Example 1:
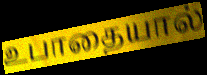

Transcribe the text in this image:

உபாதையால்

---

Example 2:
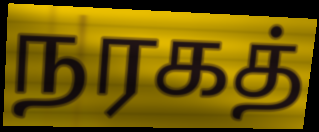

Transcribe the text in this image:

நரகத்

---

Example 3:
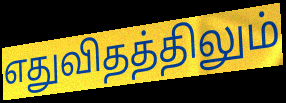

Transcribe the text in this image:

எதுவிதத்திலும்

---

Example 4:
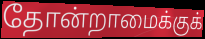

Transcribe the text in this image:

தோன்றாமைக்குக்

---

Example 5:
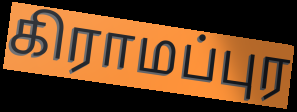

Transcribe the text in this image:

கிராமப்புர